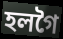
হলগৈ